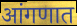
आंगणात